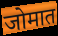
जोमात